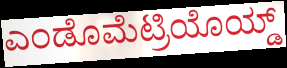
ಎಂಡೊಮೆಟ್ರಿಯೊಯ್ಡ್